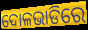
ଦୋଳଭାଡିରେ